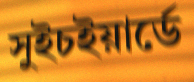
সুইচইয়ার্ডে